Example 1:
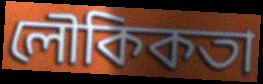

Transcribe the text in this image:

লৌকিকতা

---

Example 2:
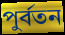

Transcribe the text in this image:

পুর্বতন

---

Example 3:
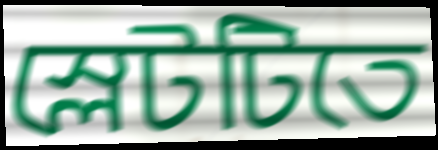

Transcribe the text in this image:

স্লেটটিতে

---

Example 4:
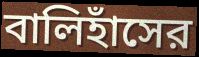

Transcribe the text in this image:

বালিহাঁসের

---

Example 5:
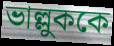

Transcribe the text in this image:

ভাল্লুককে